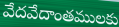
వేదవేదాంతములకు